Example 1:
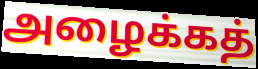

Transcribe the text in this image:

அழைக்கத்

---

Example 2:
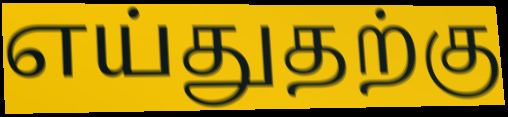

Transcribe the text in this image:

எய்துதற்கு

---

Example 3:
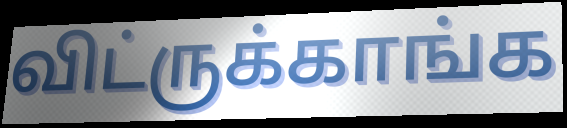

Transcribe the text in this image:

விட்ருக்காங்க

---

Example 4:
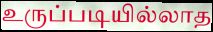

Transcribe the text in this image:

உருப்படியில்லாத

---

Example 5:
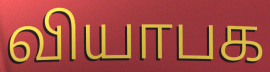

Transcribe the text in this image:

வியாபக